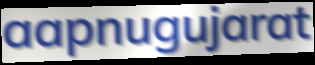
aapnugujarat